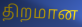
திறமான